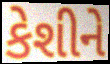
કેશીને